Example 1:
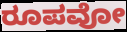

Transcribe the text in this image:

ರೂಪವೋ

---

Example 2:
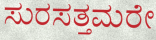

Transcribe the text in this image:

ಸುರಸತ್ತಮರೇ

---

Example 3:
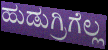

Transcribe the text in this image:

ಹುಡುಗ್ರಿಗೆಲ್ಲ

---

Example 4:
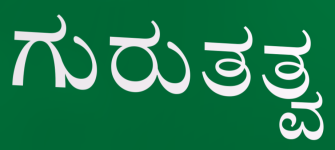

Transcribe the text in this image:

ಗುರುತತ್ವ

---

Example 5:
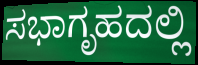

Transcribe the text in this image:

ಸಭಾಗೃಹದಲ್ಲಿ